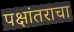
पक्षांतराचा